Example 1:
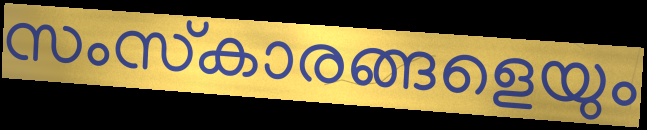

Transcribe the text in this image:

സംസ്‌കാരങ്ങളെയും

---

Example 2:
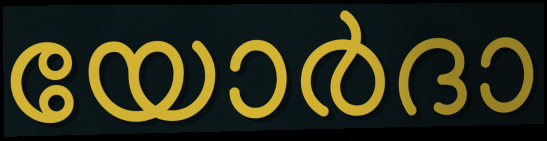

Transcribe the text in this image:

യോർദാ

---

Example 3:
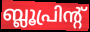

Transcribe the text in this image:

ബ്ലൂപ്രിന്റ്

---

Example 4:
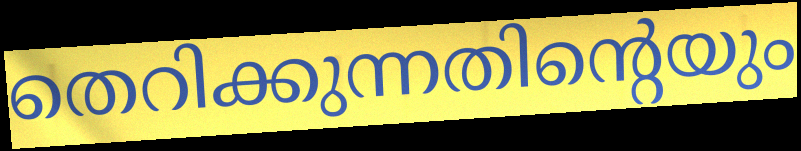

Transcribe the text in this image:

തെറിക്കുന്നതിന്റെയും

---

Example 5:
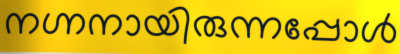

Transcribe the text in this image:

നഗ്നനായിരുന്നപ്പോൾ